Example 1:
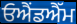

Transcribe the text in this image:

ਓਐਂਡਐੱਮ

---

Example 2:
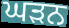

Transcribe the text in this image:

ਘੜਨ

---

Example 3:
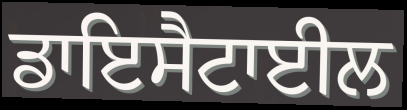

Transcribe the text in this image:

ਡਾਇਸੈਟਾਈਲ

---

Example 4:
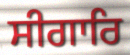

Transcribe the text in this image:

ਸੀਗਾਰਿ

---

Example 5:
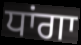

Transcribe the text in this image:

ਧਾਂਗਾ